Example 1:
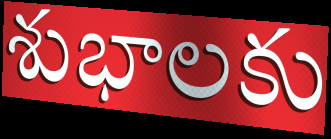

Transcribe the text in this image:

శుభాలకు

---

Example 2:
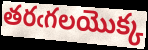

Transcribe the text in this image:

తరఁగలయొక్క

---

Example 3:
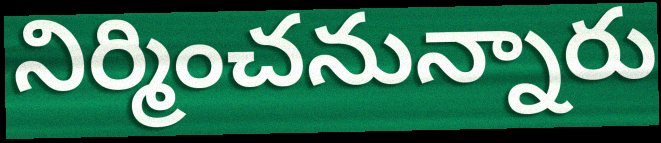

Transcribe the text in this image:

నిర్మించనున్నారు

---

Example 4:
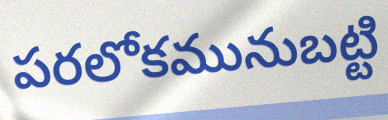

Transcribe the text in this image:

పరలోకమునుబట్టి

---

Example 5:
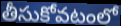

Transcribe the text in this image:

తీసుకోవటంలో